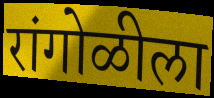
रांगोळीला